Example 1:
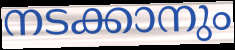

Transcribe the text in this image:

നടക്കാനും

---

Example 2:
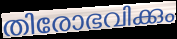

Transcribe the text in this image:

തിരോഭവിക്കും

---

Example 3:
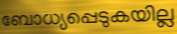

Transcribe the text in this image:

ബോധ്യപ്പെടുകയില്ല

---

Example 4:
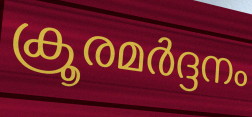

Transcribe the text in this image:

ക്രൂരമർദ്ദനം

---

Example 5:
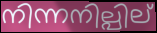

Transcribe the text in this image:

നിന്നനില്പില്